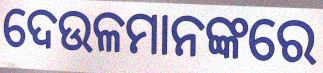
ଦେଉଳମାନଙ୍କରେ